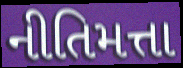
નીતિમત્તા